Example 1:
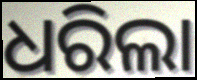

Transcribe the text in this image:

ଧରିଲା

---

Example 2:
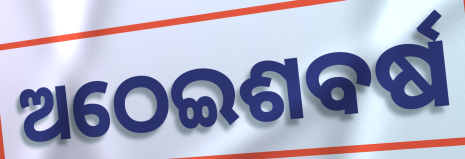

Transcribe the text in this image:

ଅଠେଇଶବର୍ଷ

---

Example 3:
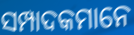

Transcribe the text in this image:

ସମ୍ପାଦକମାନେ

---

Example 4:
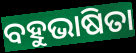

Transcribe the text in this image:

ବହୁଭାଷିତା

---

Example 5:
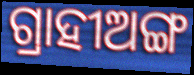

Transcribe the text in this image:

ଗ୍ରାହୀଅଙ୍ଗ